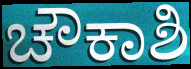
ಚೌಕಾಶಿ